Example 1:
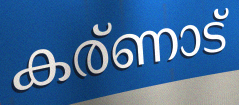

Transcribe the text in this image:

കര്ണാട്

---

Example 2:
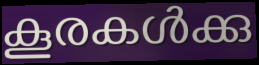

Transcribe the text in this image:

കൂരകൾക്കു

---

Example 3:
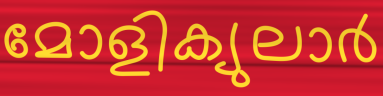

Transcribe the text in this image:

മോളിക്യുലാർ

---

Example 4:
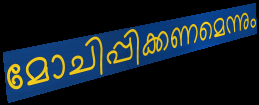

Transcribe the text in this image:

മോചിപ്പിക്കണമെന്നും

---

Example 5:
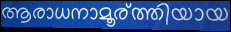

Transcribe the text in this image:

ആരാധനാമൂര്ത്തിയായ